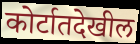
कोर्टातदेखील